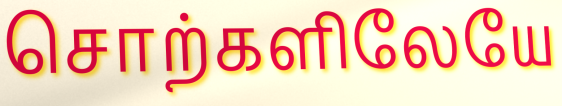
சொற்களிலேயே